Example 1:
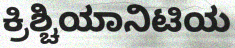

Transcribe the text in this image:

ಕ್ರಿಶ್ಚಿಯಾನಿಟಿಯ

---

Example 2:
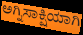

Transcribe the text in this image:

ಅಗ್ನಿಸಾಕ್ಷಿಯಾಗಿ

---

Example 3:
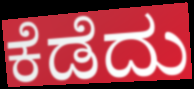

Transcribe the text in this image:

ಕೆಡೆದು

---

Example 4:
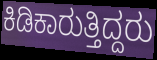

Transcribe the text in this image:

ಕಿಡಿಕಾರುತ್ತಿದ್ದರು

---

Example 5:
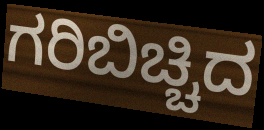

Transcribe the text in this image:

ಗರಿಬಿಚ್ಚಿದ